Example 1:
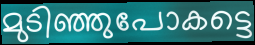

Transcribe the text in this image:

മുടിഞ്ഞുപോകട്ടെ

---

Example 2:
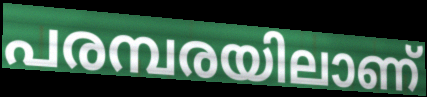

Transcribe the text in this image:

പരമ്പരയിലാണ്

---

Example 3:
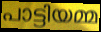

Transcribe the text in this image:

പാട്ടിയമ്മ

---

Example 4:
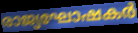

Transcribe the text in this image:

രാജ്യഘോഷകർ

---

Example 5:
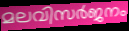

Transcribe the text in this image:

മലവിസർജനം